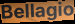
Bellagio